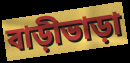
বাড়ীভাড়া